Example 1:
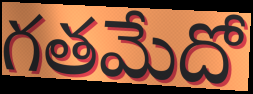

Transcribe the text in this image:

గతమేదో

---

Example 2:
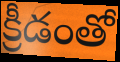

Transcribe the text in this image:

క్రీడంతో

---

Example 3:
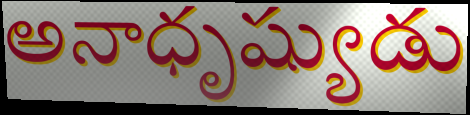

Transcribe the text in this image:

అనాధృష్యుడు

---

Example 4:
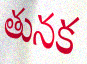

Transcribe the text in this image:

తునక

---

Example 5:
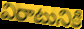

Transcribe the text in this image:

విరాటునికి